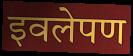
इवलेपण